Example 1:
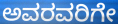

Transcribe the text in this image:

ಅವರವರಿಗೇ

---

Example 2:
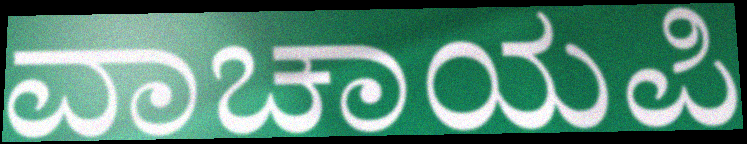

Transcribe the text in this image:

ವಾಚಾಯಪಿ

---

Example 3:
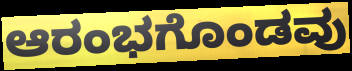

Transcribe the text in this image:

ಆರಂಭಗೊಂಡವು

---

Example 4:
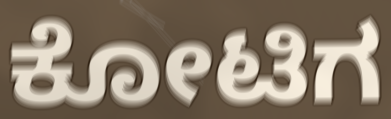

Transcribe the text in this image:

ಕೋಟಿಗ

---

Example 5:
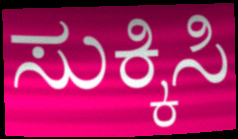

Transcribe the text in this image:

ಸುಕ್ಕಿಸಿ